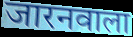
जारनवाला